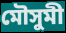
মৌসুমী